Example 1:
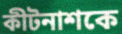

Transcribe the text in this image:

কীটনাশকে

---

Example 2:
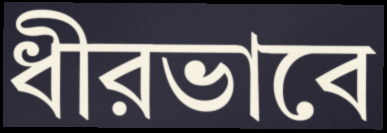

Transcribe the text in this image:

ধীরভাবে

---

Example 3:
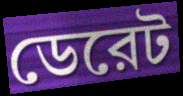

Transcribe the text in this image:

ডেরেট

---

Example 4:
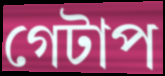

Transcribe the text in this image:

গেটাপ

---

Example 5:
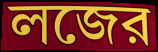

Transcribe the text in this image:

লজের